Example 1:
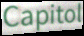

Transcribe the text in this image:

Capitol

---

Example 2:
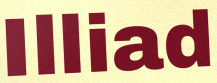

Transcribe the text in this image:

Illiad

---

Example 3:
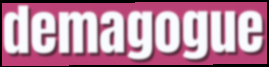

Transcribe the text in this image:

demagogue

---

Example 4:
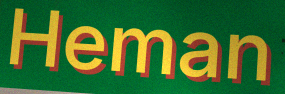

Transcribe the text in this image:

Heman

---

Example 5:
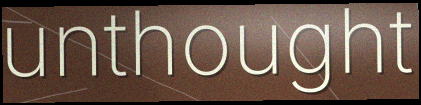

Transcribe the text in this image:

unthought